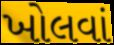
ખોલવાં